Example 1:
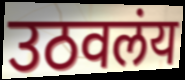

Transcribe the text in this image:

उठवलंय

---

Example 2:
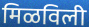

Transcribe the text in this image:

मिळविली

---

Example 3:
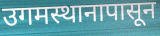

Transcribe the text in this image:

उगमस्थानापासून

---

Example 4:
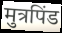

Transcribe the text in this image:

मुत्रपिंड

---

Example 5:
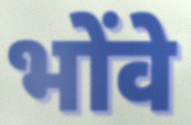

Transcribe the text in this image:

भोंवे